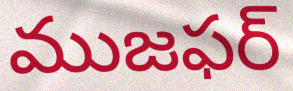
ముజఫర్